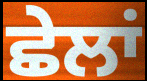
ਛੇਲਾਂ